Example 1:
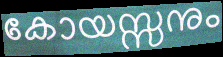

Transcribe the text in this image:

കോയസ്സനും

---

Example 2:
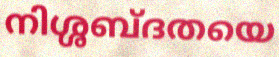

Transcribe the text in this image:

നിശ്ശബ്ദതയെ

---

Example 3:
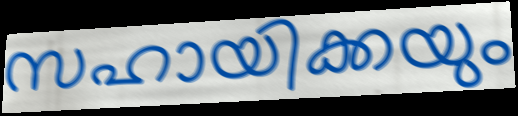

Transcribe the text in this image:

സഹായിക്കയും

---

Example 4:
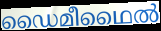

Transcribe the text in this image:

ഡൈമീഥൈൽ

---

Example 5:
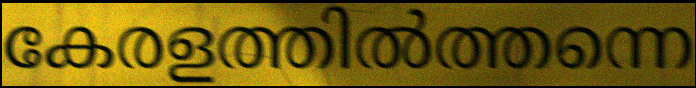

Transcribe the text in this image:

കേരളത്തിൽത്തന്നെ